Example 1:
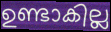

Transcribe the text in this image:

ഉണ്ടാകില്ല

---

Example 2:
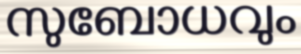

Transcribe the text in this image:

സുബോധവും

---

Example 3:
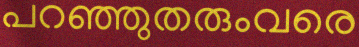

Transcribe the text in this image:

പറഞ്ഞുതരുംവരെ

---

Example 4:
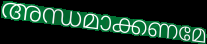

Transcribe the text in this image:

അന്ധമാക്കണമേ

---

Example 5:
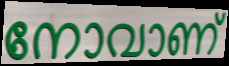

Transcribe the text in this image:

നോവാണ്